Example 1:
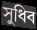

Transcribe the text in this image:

সুধিব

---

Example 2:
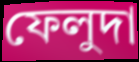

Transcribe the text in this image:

ফেলুদা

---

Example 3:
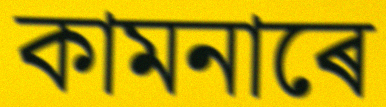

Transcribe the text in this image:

কামনাৰে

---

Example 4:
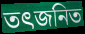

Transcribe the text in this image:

তৎজনিত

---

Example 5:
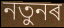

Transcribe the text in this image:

নতুনৰ